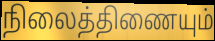
நிலைத்திணையும்